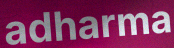
adharma